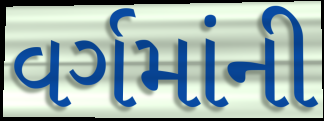
વર્ગમાંની